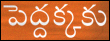
పెద్దక్కకు